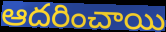
ఆదరించాయి